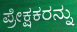
ಪ್ರೇಕ್ಷಕರನ್ನು